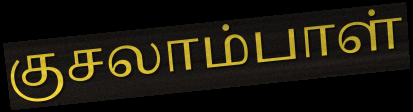
குசலாம்பாள்